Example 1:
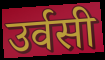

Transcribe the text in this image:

उर्वसी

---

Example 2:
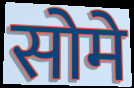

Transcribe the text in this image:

सोमे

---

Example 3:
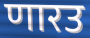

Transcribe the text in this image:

णारउ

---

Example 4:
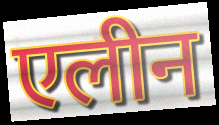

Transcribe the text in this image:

एलीन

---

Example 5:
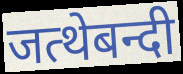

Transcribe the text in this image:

जत्थेबन्दी